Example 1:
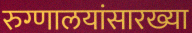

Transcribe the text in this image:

रुग्णालयांसारख्या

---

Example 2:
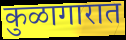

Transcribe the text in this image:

कुळागारात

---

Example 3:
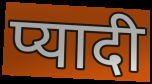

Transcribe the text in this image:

प्यादी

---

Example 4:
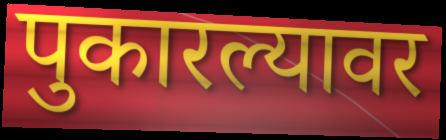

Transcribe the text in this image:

पुकारल्यावर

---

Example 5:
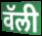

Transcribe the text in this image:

वॅली